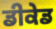
ਡੀਕੇਡ